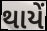
થાયેં